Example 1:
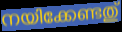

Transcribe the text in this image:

നയിക്കേണ്ടതു്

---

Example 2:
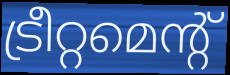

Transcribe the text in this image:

ട്രീറ്റമെന്റ്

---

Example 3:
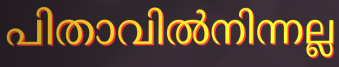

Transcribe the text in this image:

പിതാവിൽനിന്നല്ല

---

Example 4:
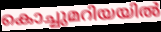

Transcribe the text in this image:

കൊച്ചുമറിയയിൽ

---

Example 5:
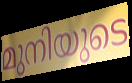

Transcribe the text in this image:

മുനിയുടെ